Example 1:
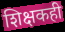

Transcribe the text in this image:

शिक्षकही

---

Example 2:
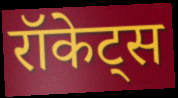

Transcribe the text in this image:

रॉकेट्स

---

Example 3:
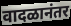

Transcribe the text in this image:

वादळानंतर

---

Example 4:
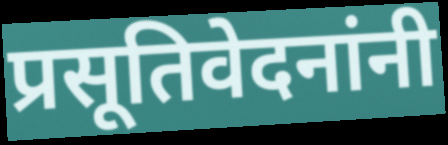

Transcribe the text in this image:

प्रसूतिवेदनांनी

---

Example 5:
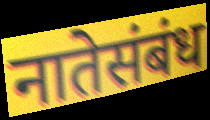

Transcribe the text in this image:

नातेसंबंध